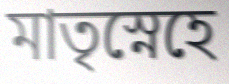
মাতৃস্নেহে